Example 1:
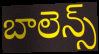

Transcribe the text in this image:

బాలెన్స్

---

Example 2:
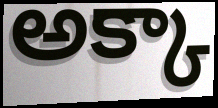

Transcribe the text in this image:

అక్కా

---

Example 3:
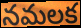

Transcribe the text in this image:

నమలక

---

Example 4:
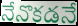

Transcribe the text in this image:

నేనొకడనే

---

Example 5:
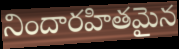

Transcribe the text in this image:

నిందారహితమైన